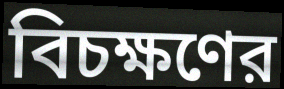
বিচক্ষণের